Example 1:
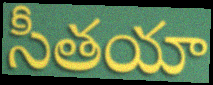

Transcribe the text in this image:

సీతయా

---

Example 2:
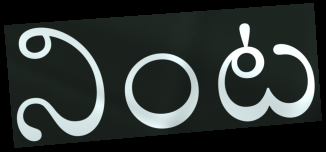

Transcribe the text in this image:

నింట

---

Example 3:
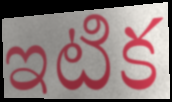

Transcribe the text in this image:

ఇటిక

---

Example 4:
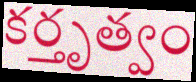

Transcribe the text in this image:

కర్తృత్వం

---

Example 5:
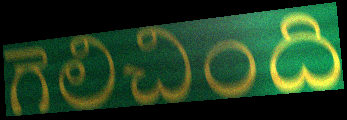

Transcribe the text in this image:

గెలిచింది